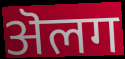
ऄलग